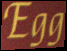
Egg